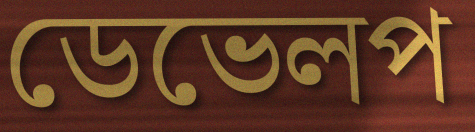
ডেভেলপ